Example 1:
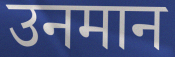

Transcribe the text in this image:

उनमान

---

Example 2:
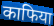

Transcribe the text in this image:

काफिया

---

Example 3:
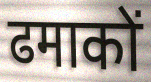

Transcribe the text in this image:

ढमाकों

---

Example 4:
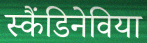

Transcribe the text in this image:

स्कैंडिनेविया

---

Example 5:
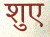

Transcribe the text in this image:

शुए